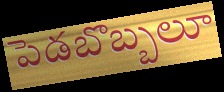
పెడబొబ్బలూ